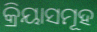
କ୍ରିୟାସମୂହ